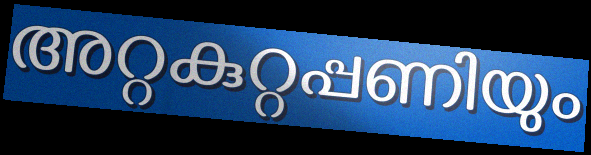
അറ്റകുറ്റപ്പണിയും